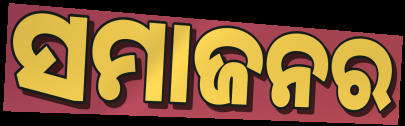
ସମାଜନର